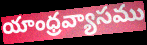
యాంధ్రవ్యాసము